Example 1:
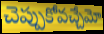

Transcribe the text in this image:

చెప్పుకోవచ్చేమో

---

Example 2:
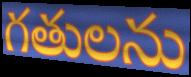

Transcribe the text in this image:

గతులను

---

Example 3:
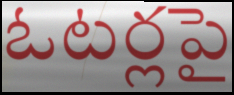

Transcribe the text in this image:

ఓటర్లపై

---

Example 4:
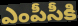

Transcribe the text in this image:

ఎంపీసీకి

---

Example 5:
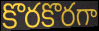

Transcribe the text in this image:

కొరకొరగా